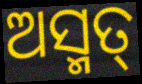
ଅସ୍ମତ୍